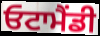
ਓਟਾਮੈਂਡੀ